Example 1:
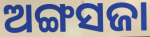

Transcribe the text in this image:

ଅଙ୍ଗସଜା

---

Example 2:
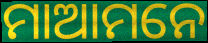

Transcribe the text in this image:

ମାଆମନେ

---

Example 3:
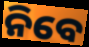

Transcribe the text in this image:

ନିବେ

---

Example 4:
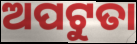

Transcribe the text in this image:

ଅପଟୁତା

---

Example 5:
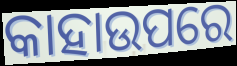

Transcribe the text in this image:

କାହାଉପରେ